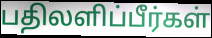
பதிலளிப்பீர்கள்